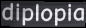
diplopia